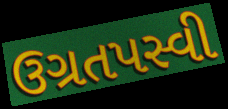
ઉગ્રતપસ્વી